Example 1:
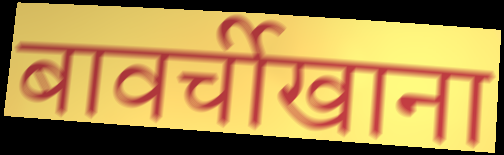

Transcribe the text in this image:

बावर्चीखाना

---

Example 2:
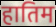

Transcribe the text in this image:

हातिम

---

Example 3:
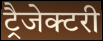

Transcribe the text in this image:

ट्रैजेक्‍टरी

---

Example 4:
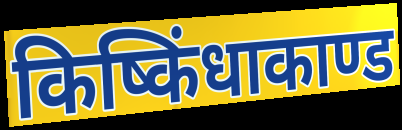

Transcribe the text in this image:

किष्किंधाकाण्ड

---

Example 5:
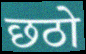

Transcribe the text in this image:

छठो